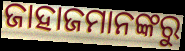
ଜାହାଜମାନଙ୍କରୁ